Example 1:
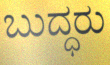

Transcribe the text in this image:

ಬುದ್ಧರು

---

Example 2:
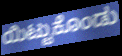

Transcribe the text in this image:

ಯಿಟ್ಟುಕೊಂಡು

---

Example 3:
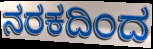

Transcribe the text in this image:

ನರಕದಿಂದ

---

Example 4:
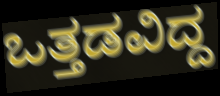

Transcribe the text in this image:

ಒತ್ತಡವಿದ್ದ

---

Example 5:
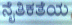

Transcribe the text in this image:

ನೈತಿಕತೆಯ